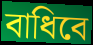
বাধিবে